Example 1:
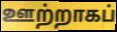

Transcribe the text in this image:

ஊற்றாகப்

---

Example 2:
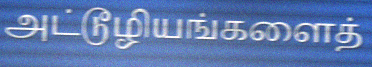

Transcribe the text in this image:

அட்டூழியங்களைத்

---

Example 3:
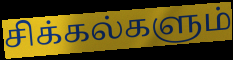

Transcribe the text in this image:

சிக்கல்களும்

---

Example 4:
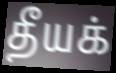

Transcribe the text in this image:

தீயக்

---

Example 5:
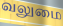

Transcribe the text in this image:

வலுமை